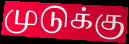
முடுக்கு